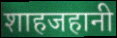
शाहजहानी